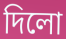
দিলো